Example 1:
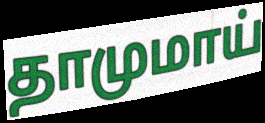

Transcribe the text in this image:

தாமுமாய்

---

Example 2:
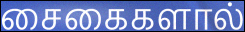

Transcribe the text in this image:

சைகைகளால்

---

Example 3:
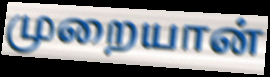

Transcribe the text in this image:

முறையான்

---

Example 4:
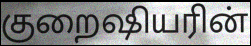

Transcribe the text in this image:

குறைஷியரின்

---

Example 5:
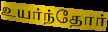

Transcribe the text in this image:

உயர்ந்தோர்